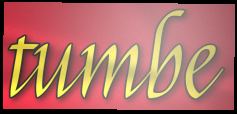
tumbe